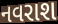
નવરાશ